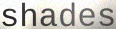
shades